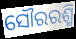
ସୌରରଶ୍ମି